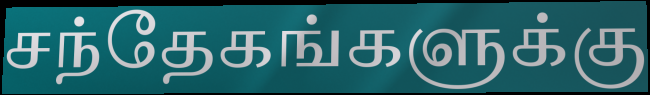
சந்தேகங்களுக்கு